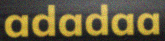
adadaa